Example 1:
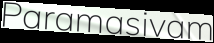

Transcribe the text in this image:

Paramasivam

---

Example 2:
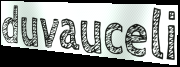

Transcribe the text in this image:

duvauceli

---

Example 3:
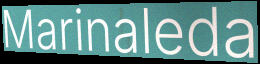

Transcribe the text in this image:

Marinaleda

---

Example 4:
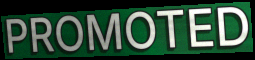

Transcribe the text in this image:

PROMOTED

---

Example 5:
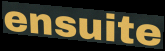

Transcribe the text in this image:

ensuite